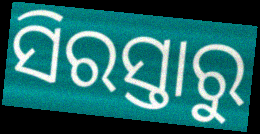
ସିରସ୍ତାରୁ